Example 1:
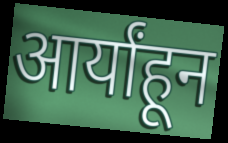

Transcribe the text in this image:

आर्यांहून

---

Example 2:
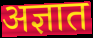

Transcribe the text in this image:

अज्ञात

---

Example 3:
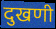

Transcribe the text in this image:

दुखणी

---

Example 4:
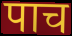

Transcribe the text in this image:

पाच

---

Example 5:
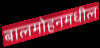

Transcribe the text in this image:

बालमोहनमधील